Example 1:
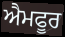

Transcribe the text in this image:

ਐਮਫੂਰ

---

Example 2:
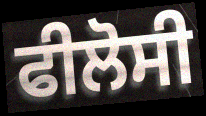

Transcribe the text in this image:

ਫੀਲੋਸੀ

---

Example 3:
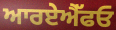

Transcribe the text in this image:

ਆਰਏਐੱਫਓ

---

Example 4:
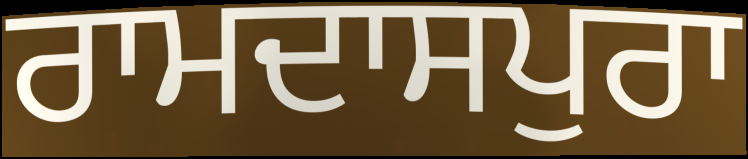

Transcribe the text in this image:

ਰਾਮਦਾਸਪੁਰਾ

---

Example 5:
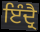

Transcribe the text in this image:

ਇੰਦ੍ਰੈ